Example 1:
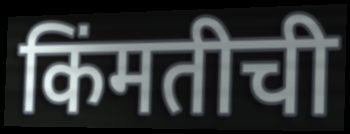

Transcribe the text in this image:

किंमतीची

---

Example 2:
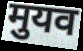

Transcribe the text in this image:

मुयव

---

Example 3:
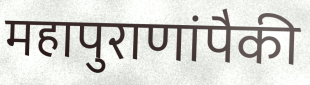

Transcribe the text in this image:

महापुराणांपैकी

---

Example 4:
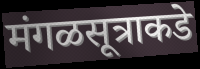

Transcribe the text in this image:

मंगळसूत्राकडे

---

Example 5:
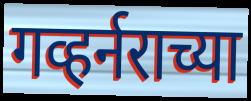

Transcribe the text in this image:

गव्हर्नराच्या